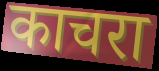
काचरा